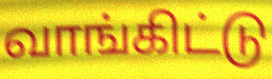
வாங்கிட்டு